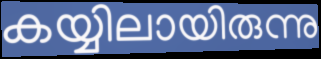
കയ്യിലായിരുന്നു